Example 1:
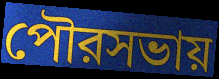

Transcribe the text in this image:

পৌরসভায়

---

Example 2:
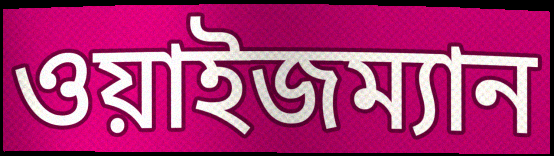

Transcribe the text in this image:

ওয়াইজম্যান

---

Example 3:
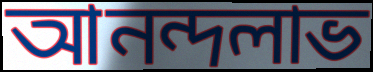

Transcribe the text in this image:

আনন্দলাভ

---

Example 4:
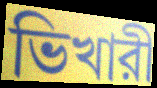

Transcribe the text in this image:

ভিখারী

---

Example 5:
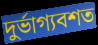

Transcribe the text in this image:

দুর্ভাগ্যবশত